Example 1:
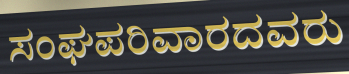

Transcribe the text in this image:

ಸಂಘಪರಿವಾರದವರು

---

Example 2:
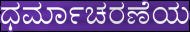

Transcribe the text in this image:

ಧರ್ಮಾಚರಣೆಯ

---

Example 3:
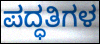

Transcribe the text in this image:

ಪದ್ಧತಿಗಳ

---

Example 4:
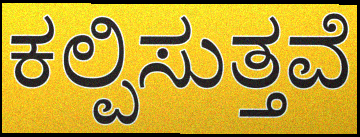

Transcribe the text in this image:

ಕಲ್ಪಿಸುತ್ತವೆ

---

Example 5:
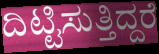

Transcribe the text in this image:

ದಿಟ್ಟಿಸುತ್ತಿದ್ದರೆ